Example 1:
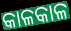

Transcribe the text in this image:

କାଳକାଳ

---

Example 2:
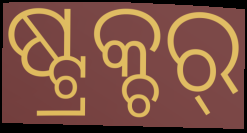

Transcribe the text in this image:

ଷ୍ଟ୍ରକ୍ଚର୍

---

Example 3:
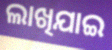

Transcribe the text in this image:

ଲାଖିଯାଇ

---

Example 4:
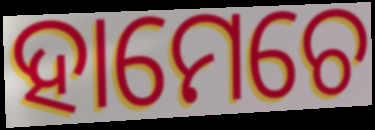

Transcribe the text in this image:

ହାମେଚେ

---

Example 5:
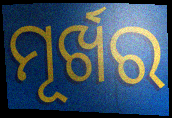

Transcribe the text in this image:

ମୂର୍ଖର